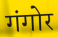
गंगोर